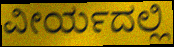
ವೀರ್ಯದಲ್ಲಿ